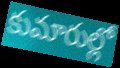
కుమారుల్లో